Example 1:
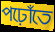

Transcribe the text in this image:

পঢ়োঁতে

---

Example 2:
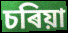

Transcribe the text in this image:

চৰিয়া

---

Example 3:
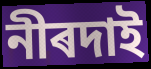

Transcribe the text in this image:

নীৰদাই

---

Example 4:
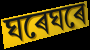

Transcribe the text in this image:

ঘৰেঘৰে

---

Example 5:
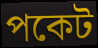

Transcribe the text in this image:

পকেট